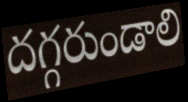
దగ్గరుండాలి